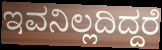
ಇವನಿಲ್ಲದಿದ್ದರೆ